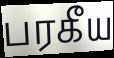
பரகீய